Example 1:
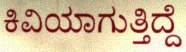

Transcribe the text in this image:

ಕಿವಿಯಾಗುತ್ತಿದ್ದೆ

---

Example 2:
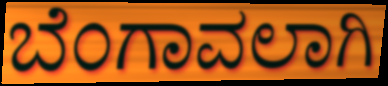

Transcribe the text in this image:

ಬೆಂಗಾವಲಾಗಿ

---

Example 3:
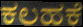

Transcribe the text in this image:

ಕಲಹಕೆ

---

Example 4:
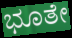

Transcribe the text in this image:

ಭೂತೇ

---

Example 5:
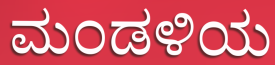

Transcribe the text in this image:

ಮಂಡಳಿಯ